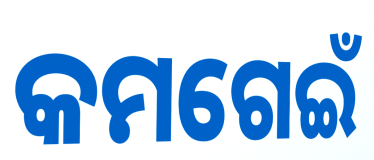
କମଗେଇଁ